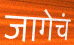
जागेचं